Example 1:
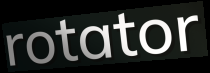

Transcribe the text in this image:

rotator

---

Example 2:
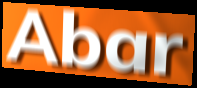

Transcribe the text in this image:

Abar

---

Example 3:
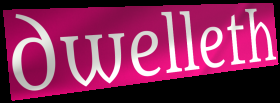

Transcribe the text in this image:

dwelleth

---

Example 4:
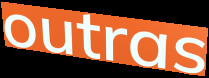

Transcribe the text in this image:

outras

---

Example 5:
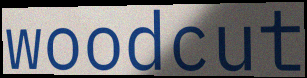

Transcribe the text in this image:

woodcut